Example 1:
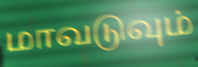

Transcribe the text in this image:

மாவடுவும்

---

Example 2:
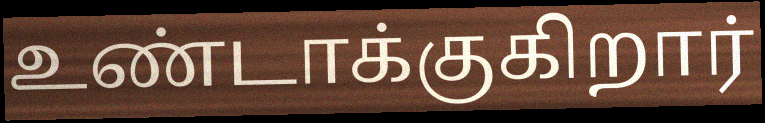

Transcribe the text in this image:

உண்டாக்குகிறார்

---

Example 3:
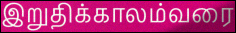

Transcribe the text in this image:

இறுதிக்காலம்வரை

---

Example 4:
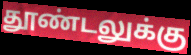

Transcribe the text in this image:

தூண்டலுக்கு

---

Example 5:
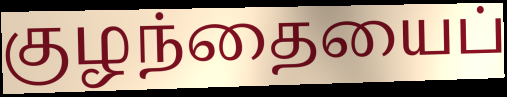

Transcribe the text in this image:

குழந்தையைப்